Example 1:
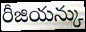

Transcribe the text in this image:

రీజియన్కు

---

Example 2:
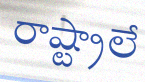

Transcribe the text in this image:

రాష్ట్రాలే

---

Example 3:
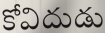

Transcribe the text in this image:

కోవిదుడు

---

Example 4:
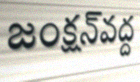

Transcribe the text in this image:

జంక్షన్‌వద్ద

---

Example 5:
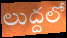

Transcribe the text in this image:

లుద్దలో